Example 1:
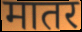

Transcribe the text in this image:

मातर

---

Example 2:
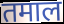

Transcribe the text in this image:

तमाल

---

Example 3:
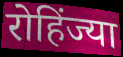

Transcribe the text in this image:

रोहिंज्या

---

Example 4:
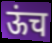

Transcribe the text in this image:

ऊंच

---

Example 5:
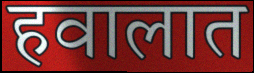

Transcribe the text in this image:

हवालात